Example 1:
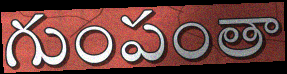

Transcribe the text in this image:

గుంపంతా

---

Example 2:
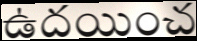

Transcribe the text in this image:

ఉదయించ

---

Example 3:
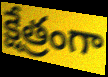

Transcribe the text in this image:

క్షేత్రంగా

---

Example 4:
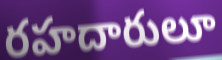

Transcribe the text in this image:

రహదారులూ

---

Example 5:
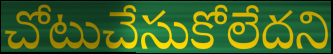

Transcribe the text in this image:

చోటుచేసుకోలేదని